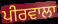
ਪੀਰਵਾਲਾ